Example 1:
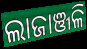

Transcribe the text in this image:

ଲାଜାଞ୍ଜଳି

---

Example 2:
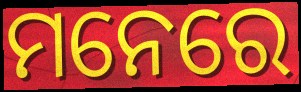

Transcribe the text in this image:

ମନେରେ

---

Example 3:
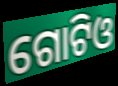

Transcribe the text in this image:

ଗୋଟିଓ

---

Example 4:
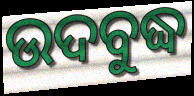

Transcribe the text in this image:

ଉଦବୁଦ୍ଧ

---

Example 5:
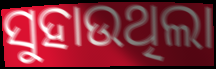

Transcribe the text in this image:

ସୁହାଉଥିଲା